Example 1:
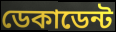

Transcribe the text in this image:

ডেকাডেন্ট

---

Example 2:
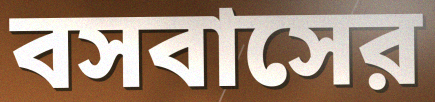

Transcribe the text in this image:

বসবাসের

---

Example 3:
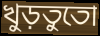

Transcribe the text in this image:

খুড়তুতো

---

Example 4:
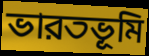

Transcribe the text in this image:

ভারতভূমি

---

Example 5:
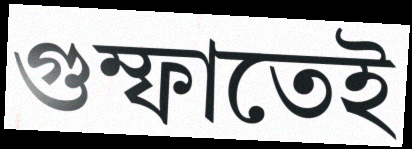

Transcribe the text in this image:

গুম্ফাতেই